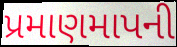
પ્રમાણમાપની